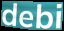
debi